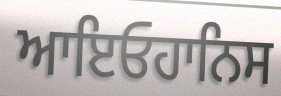
ਆਇਓਹਾਨਿਸ